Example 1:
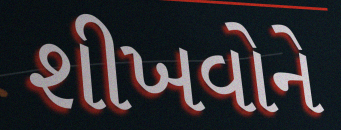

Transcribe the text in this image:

શીખવોને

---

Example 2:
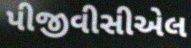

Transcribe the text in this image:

પીજીવીસીએલ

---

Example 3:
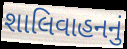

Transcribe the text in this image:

શાલિવાહનનું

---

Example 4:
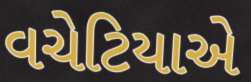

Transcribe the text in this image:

વચેટિયાએ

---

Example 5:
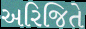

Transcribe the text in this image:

અરિજિતે